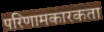
परिणामकारकता